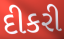
દીકરી